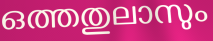
ഒത്തതുലാസും